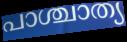
പാശ്ചാത്യ